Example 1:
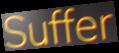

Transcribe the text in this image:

Suffer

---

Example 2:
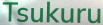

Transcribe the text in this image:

Tsukuru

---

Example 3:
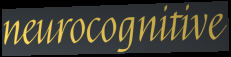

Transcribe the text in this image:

neurocognitive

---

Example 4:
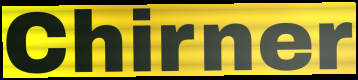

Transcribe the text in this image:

Chirner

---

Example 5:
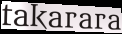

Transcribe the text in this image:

takarara